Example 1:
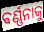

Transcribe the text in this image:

ଵର୍ଣ୍ଣନାକୁ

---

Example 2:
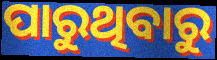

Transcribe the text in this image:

ପାରୁଥିବାରୁ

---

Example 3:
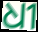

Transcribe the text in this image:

ଧୀ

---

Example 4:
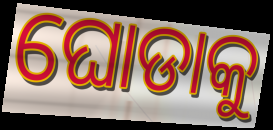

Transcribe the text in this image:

ଘୋଡାକୁ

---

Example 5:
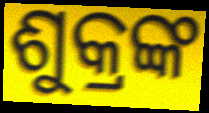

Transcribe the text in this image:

ଶୁକ୍ରଙ୍କ